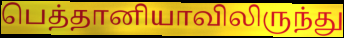
பெத்தானியாவிலிருந்து